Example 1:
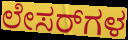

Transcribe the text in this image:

ಲೇಸರ್‌ಗಳ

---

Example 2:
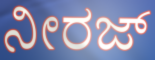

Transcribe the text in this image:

ನೀರಜ್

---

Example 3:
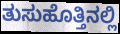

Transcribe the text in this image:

ತುಸುಹೊತ್ತಿನಲ್ಲಿ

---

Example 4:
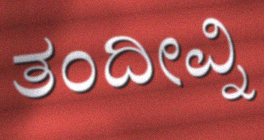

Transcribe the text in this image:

ತಂದೀವ್ನಿ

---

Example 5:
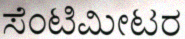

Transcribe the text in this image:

ಸೆಂಟಿಮೀಟರ